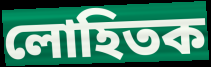
লোহিতক